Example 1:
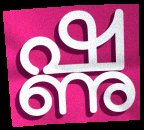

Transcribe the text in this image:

ഷ്ണു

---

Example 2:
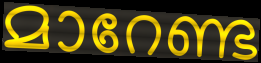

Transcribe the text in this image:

മാറേണ്ട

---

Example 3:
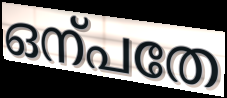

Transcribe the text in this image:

ഒന്പതേ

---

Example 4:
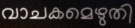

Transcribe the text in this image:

വാചകമെഴുതി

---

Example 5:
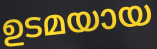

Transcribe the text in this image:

ഉടമയായ